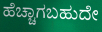
ಹೆಚ್ಚಾಗಬಹುದೇ